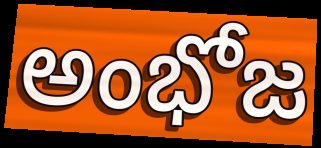
అంభోజ